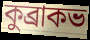
কুব্রাকভ